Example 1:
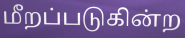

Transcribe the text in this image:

மீறப்படுகின்ற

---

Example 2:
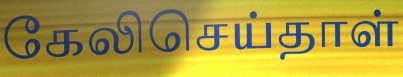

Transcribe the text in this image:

கேலிசெய்தாள்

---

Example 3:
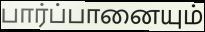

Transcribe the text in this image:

பார்ப்பானையும்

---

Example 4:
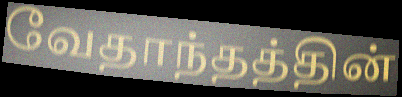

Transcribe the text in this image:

வேதாந்தத்தின்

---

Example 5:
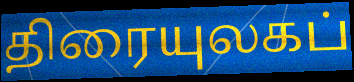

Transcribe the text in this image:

திரையுலகப்